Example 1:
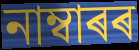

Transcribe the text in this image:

নাম্বাৰৰ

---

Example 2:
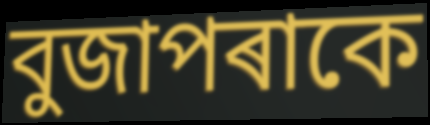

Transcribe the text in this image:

বুজাপৰাকে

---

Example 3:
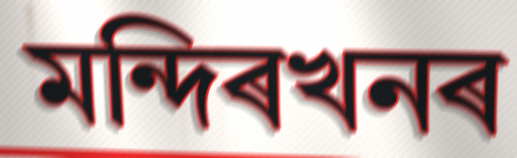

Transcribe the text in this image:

মন্দিৰখনৰ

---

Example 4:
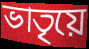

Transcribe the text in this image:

ভাতৃয়ে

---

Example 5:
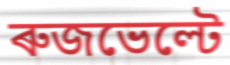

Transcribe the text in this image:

ৰুজভেল্টে